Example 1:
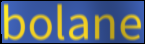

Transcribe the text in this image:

bolane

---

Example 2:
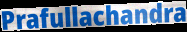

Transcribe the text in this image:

Prafullachandra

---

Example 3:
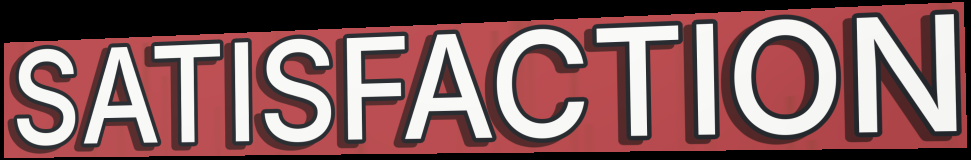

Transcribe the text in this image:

SATISFACTION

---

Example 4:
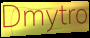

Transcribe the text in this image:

Dmytro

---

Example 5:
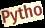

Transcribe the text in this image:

Pytho